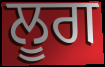
ਲੂਗ